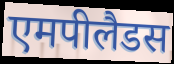
एमपीलैडस